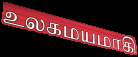
உலகமயமாகி